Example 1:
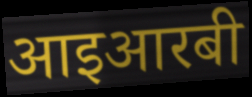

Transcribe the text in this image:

आइआरबी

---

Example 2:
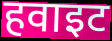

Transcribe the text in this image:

हवाइट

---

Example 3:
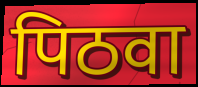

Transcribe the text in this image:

पिठवा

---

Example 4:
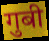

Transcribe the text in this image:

गुबी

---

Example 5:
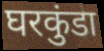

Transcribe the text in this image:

घरकुंडा